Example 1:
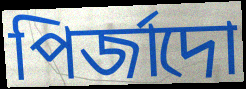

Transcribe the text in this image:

পিৰ্জাদো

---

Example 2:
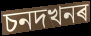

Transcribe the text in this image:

চনদখনৰ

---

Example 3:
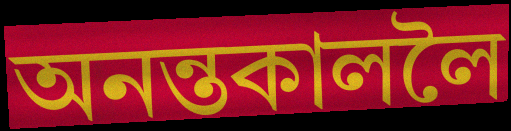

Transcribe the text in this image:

অনন্তকাললৈ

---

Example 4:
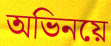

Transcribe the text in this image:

অভিনয়ে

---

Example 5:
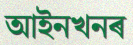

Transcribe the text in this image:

আইনখনৰ